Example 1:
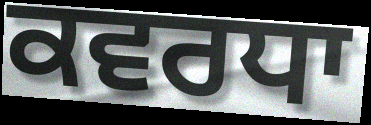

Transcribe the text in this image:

ਕਵਰਧਾ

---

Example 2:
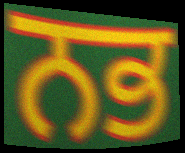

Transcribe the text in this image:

ਨਭ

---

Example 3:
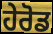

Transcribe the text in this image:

ਹੇਰੋਡ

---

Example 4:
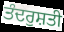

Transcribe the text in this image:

ਤੰਦਰੁਸ਼ਤੀ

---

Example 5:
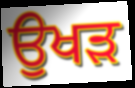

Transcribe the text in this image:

ਉਖੜ